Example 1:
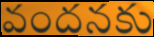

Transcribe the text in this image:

వందనకు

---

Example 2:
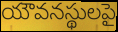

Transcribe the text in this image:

యౌవనస్థులపై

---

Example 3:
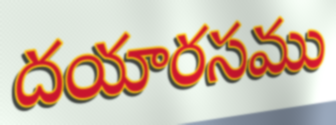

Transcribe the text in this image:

దయారసము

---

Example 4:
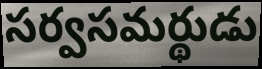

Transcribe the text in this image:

సర్వసమర్థుడు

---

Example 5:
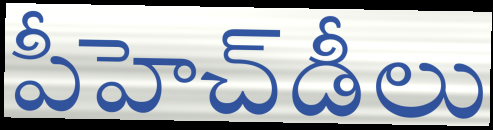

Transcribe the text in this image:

పీహెచ్‌డీలు